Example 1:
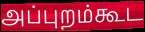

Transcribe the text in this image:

அப்புறம்கூட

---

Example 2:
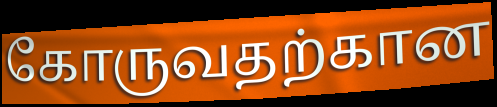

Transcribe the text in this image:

கோருவதற்கான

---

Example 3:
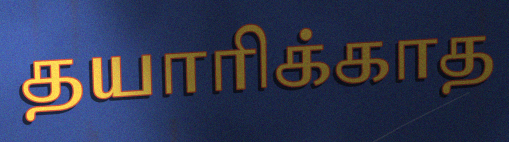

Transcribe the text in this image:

தயாரிக்காத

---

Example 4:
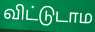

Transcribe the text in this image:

விட்டுடாம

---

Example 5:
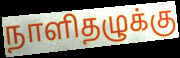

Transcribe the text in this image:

நாளிதழுக்கு